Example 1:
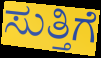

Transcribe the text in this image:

ಸುತ್ತಿಗೆ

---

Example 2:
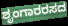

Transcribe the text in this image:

ಶೃಂಗಾರರಸದ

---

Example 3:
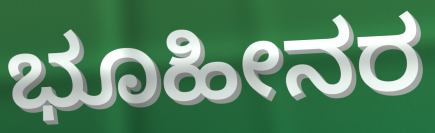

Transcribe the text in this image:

ಭೂಹೀನರ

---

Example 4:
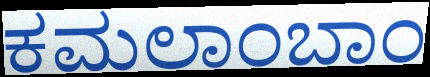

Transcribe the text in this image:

ಕಮಲಾಂಬಾಂ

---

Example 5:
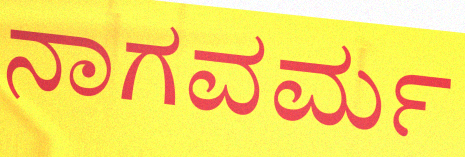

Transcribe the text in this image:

ನಾಗವರ್ಮ